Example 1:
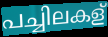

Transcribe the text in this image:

പച്ചിലകള്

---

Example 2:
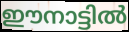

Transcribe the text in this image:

ഈനാട്ടിൽ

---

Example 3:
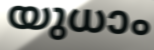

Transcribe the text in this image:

യുധാം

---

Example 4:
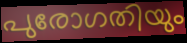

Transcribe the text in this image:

പുരോഗതിയും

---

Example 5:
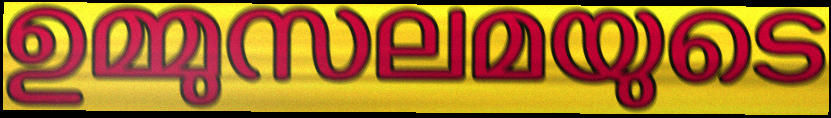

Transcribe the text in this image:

ഉമ്മുസലമയുടെ